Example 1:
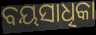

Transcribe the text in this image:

ବୟସାଧିକା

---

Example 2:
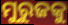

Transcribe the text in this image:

ମୁରୁଜକୁ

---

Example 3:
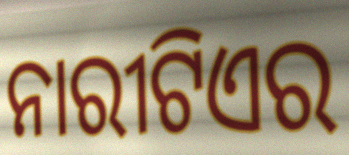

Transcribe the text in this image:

ନାରୀଟିଏର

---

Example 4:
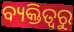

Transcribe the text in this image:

ବ୍ୟକ୍ତିତ୍ଵରୁ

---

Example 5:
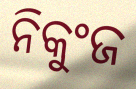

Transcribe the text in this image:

ନିକୁଂଜ